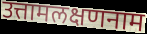
उत्तामलक्षणनाम